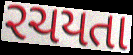
રચયતા